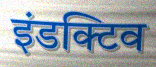
इंडक्टिव